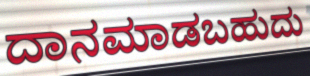
ದಾನಮಾಡಬಹುದು